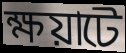
ক্ষয়াটে